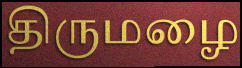
திருமழை